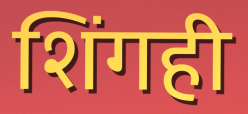
शिंगही